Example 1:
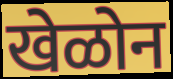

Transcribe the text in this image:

खेळोन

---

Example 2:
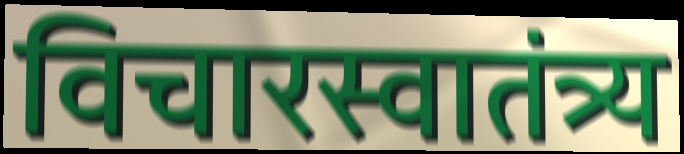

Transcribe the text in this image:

विचारस्वातंत्र्य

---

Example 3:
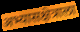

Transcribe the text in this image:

अभ्यासक्षेत्राला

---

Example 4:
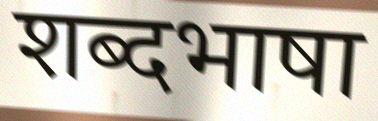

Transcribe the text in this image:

शब्दभाषा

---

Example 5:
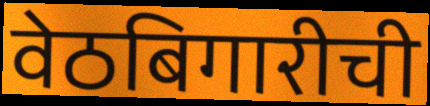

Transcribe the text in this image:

वेठबिगारीची